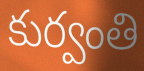
కుర్వంతి